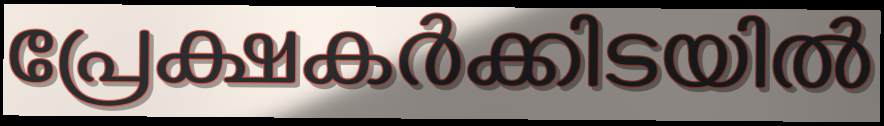
പ്രേക്ഷകർക്കിടയിൽ